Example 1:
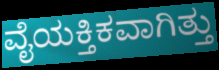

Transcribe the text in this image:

ವೈಯಕ್ತಿಕವಾಗಿತ್ತು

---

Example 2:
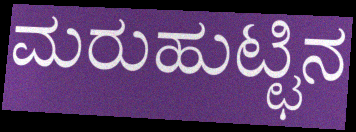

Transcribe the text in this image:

ಮರುಹುಟ್ಟಿನ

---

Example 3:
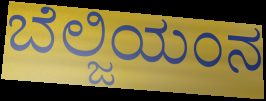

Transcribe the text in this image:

ಬೆಲ್ಜಿಯಂನ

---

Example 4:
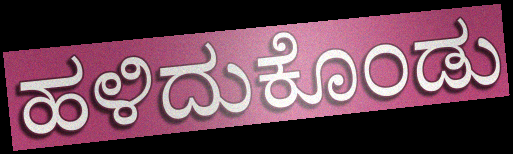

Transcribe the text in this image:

ಹಳಿದುಕೊಂಡು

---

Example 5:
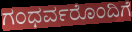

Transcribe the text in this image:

ಗಂಧರ್ವರೊಂದಿಗೆ